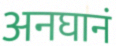
अनघानं